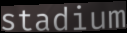
stadium